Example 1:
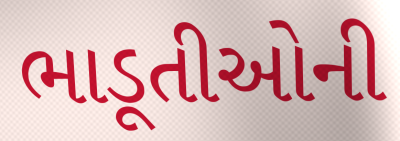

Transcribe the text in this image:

ભાડૂતીઓની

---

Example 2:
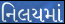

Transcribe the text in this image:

નિલયમાં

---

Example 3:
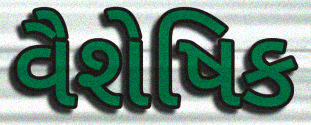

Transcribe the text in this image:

વૈશેષિક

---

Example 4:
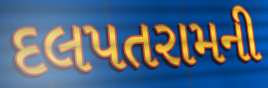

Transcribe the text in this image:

દલપતરામની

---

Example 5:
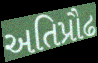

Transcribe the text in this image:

અતિપ્રૌઢ